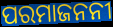
ପରମାଜନନୀ